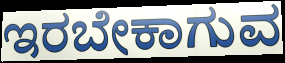
ಇರಬೇಕಾಗುವ